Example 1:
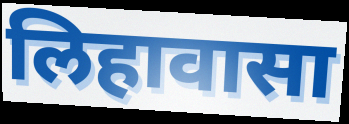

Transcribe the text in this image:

लिहावासा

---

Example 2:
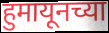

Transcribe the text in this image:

हुमायूनच्या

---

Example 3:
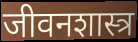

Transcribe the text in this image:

जीवनशास्त्र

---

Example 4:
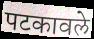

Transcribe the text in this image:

पटकावले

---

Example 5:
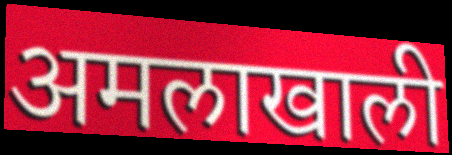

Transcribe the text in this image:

अमलाखाली